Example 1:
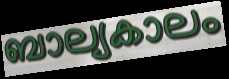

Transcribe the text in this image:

ബാല്യകാലം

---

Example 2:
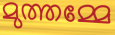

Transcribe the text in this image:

മുത്തമ്മേ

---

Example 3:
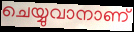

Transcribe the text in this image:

ചെയ്യുവാനാണ്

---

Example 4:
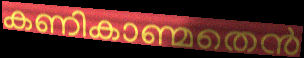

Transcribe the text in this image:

കണികാണ്മതെൻ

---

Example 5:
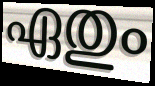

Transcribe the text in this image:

ഏതും